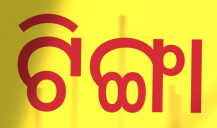
ଟିଙ୍ଗା